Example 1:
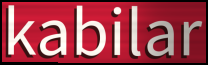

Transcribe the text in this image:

kabilar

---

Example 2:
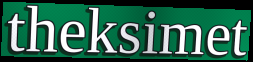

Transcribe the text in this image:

theksimet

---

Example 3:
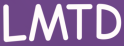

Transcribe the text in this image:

LMTD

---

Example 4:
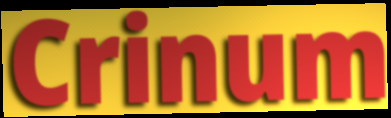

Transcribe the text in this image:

Crinum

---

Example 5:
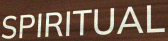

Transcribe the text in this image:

SPIRITUAL